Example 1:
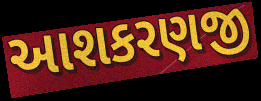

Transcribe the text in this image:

આશકરણજી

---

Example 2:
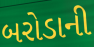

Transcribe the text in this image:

બરોડાની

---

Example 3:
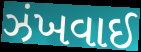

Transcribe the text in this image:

ઝંખવાઈ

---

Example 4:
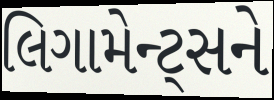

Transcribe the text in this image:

લિગામેન્ટ્સને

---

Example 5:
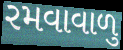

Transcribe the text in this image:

રમવાવાળુ